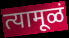
त्यामूळं